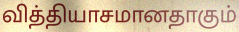
வித்தியாசமானதாகும்